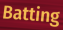
Batting